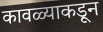
कावळ्याकडून